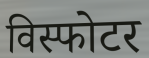
विस्फोटर